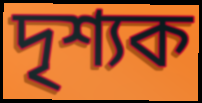
দৃশ্যক